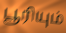
பூரியும்